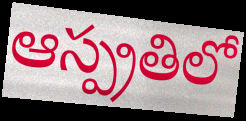
ఆస్ప్రతిలో